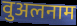
वुअलनाम